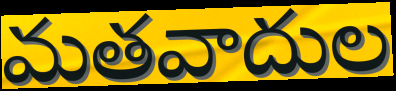
మతవాదుల